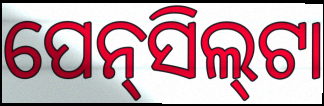
ପେନ୍‌ସିଲ୍‍ଟା